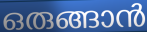
ഒരുങ്ങാൻ